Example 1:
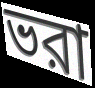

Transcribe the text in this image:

ভরা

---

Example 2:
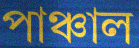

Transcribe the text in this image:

পাঞ্চাল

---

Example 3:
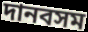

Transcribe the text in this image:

দানবসম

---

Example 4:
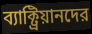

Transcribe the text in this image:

ব্যাক্ট্রিয়ানদের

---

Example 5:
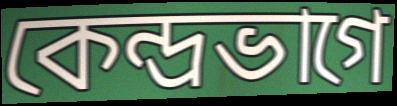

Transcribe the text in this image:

কেন্দ্রভাগে